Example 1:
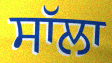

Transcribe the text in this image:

ਸਾੱਲਾ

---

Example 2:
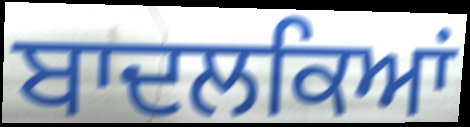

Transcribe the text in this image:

ਬਾਦਲਕਿਆਂ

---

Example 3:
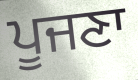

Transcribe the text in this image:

ਪੂਜਣਾ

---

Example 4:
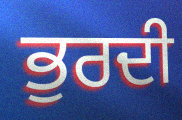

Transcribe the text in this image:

ਭੁਰਦੀ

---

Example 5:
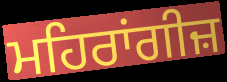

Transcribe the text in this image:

ਮਹਿਰਾਂਗੀਜ਼